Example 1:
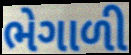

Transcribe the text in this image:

ભેગાળી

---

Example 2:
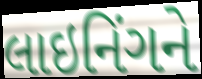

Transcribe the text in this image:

લાઇનિંગને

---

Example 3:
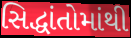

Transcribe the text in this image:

સિદ્ધાંતોમાંથી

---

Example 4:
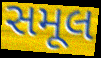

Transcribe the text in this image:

સમૂલ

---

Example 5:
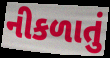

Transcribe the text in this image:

નીકળાતું